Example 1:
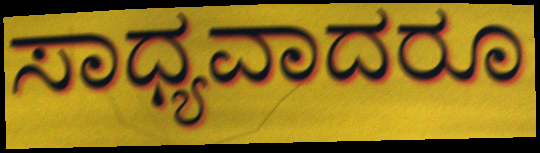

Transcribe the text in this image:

ಸಾಧ್ಯವಾದರೂ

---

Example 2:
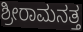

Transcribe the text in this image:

ಶ್ರೀರಾಮನತ್ತ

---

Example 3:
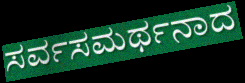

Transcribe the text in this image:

ಸರ್ವಸಮರ್ಥನಾದ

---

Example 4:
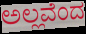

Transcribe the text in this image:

ಅಲ್ಲವೆಂದ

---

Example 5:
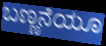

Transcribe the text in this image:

ಬಣ್ಣನೆಯೂ